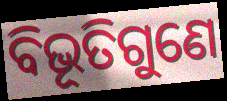
ବିଭୂତିଗୁଣେ